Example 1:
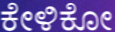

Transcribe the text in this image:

ಕೇಳಿಕೋ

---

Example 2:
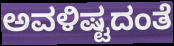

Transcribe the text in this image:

ಅವಳಿಷ್ಟದಂತೆ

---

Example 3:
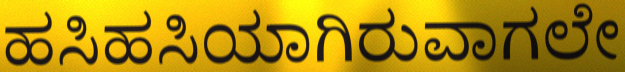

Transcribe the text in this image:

ಹಸಿಹಸಿಯಾಗಿರುವಾಗಲೇ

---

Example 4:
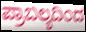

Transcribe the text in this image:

ಪ್ರಾಬಲ್ಯದಿಂದ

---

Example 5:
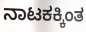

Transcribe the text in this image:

ನಾಟಕಕ್ಕಿಂತ